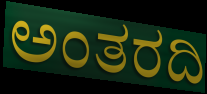
ಅಂತರದಿ